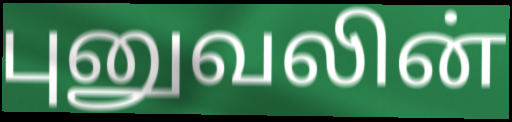
புனுவலின்